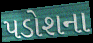
પડોશના